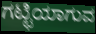
ಗಟ್ಟಿಯಾಗುವ